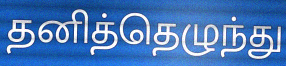
தனித்தெழுந்து